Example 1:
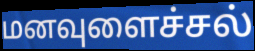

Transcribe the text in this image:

மனவுளைச்சல்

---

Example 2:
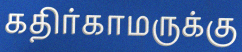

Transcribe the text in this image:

கதிர்காமருக்கு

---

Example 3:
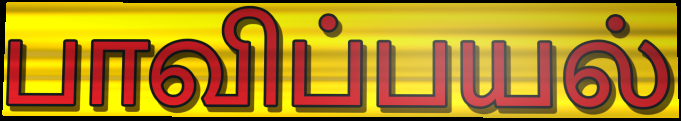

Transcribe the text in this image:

பாவிப்பயல்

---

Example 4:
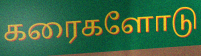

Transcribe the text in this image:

கரைகளோடு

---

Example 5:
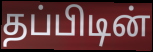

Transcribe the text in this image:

தப்பிடின்